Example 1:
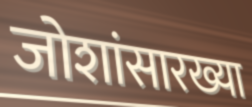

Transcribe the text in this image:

जोशांसारख्या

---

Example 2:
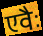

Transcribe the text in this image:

एवैः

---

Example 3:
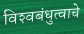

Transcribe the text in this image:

विश्वबंधुत्वाचे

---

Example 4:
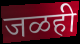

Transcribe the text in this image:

जळही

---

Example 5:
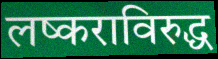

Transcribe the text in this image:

लष्कराविरुद्ध